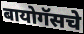
बायोगॅसचे